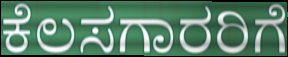
ಕೆಲಸಗಾರರಿಗೆ